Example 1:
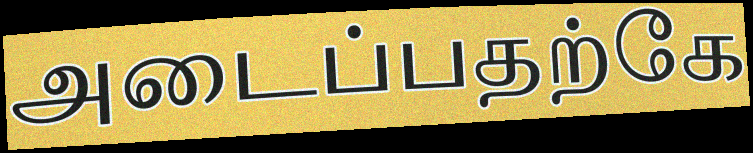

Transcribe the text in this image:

அடைப்பதற்கே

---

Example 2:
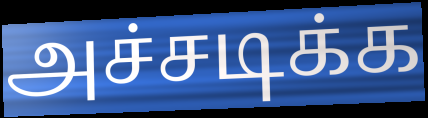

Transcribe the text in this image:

அச்சடிக்க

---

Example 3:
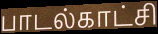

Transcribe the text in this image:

பாடல்காட்சி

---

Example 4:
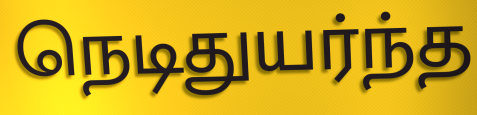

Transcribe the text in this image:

நெடிதுயர்ந்த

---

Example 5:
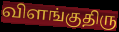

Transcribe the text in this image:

விளங்குதிரு